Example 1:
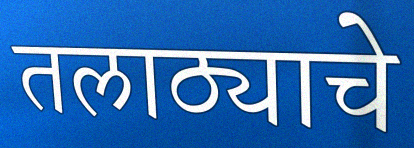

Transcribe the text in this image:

तलाठ्याचे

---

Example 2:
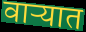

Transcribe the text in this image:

वाऱ्यात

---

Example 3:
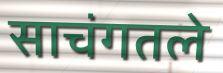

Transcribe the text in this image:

साचंगतले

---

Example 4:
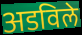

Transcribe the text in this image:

अडविले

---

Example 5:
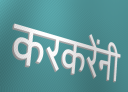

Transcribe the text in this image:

करकरेंनी